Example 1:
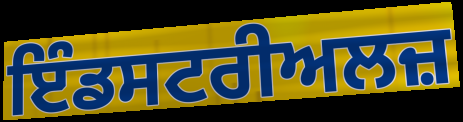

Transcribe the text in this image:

ਇੰਡਸਟਰੀਅਲਜ਼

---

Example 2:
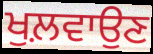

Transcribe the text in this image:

ਖੁਲ਼ਵਾਉਣ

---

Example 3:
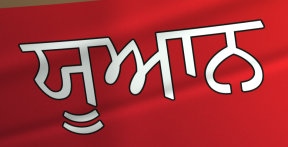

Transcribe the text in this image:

ਯੂਆਨ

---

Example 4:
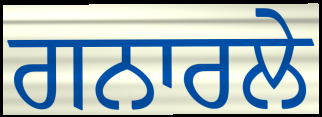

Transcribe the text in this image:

ਗਨਾਰਲੇ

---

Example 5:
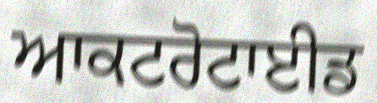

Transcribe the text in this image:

ਆਕਟਰੋਟਾਈਡ